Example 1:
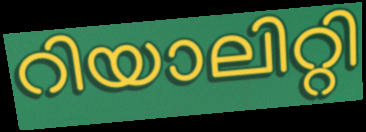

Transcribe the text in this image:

റിയാലിറ്റി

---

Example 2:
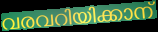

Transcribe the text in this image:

വരവറിയിക്കാന്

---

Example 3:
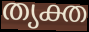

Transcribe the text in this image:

ത്യക്ത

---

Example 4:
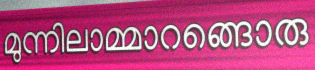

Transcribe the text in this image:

മുന്നിലാമ്മാറങ്ങൊരു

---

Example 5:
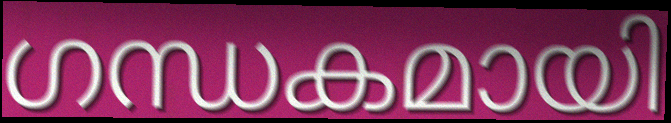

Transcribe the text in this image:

ഗന്ധകമായി